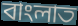
বাংলাত